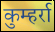
कुम्हर्रा